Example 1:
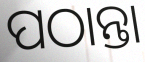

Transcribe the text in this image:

ପଠାନ୍ତା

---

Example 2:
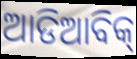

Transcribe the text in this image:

ଆଡିଆବିକ୍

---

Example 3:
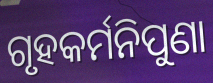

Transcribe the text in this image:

ଗୃହକର୍ମନିପୁଣା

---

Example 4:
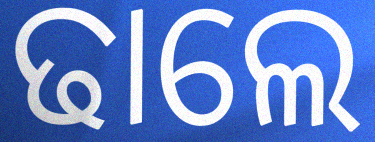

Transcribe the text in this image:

ଢାଲେ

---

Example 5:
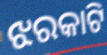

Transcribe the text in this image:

ଝରକାଟି